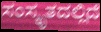
ಸಂಸ್ಕೃತದಲ್ಲಿದೆ